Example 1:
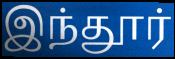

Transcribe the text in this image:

இந்தூர்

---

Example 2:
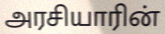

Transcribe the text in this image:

அரசியாரின்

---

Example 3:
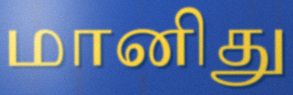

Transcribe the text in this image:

மானிது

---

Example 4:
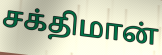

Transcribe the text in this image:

சக்திமான்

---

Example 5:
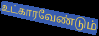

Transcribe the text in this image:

உட்காரவேண்டும்